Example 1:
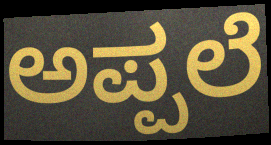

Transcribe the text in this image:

ಅಪ್ಪಲೆ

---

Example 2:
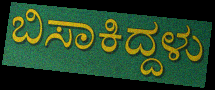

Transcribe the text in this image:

ಬಿಸಾಕಿದ್ದಳು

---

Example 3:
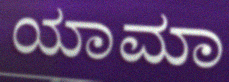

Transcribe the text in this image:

ಯಾಮಾ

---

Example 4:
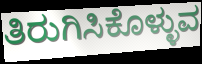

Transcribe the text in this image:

ತಿರುಗಿಸಿಕೊಳ್ಳುವ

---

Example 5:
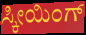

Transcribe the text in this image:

ಸ್ಕೀಯಿಂಗ್